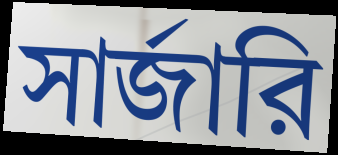
সার্জারি